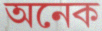
অনেক